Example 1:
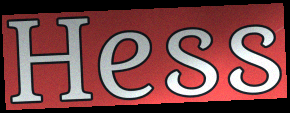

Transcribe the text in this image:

Hess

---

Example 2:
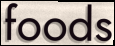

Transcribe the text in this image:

foods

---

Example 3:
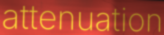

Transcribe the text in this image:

attenuation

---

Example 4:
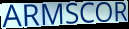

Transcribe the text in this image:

ARMSCOR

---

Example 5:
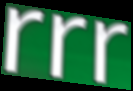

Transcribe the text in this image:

rrr